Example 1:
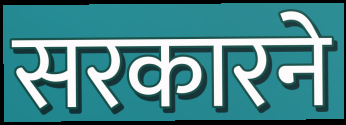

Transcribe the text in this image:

सरकारने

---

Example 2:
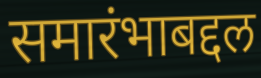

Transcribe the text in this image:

समारंभाबद्दल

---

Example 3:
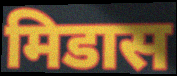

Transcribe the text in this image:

मिडास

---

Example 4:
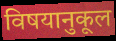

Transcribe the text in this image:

विषयानुकूल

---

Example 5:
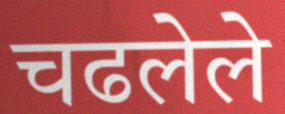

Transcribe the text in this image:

चढलेले